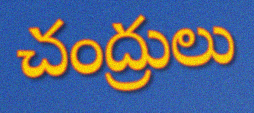
చంద్రులు